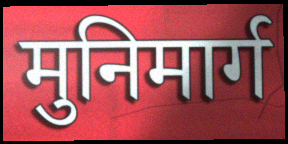
मुनिमार्ग